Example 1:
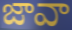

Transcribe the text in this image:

జావా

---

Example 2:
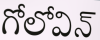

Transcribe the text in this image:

గోలోవిన్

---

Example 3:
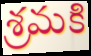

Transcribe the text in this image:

శ్రమకి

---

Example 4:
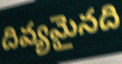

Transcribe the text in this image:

దివ్యమైనది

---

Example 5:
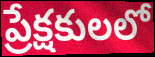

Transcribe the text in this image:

ప్రేక్షకులలో